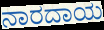
ನಾರದಾಯ